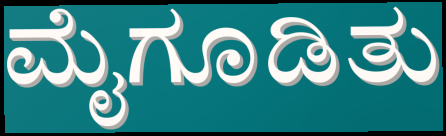
ಮೈಗೂಡಿತು